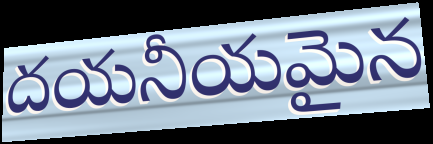
దయనీయమైన